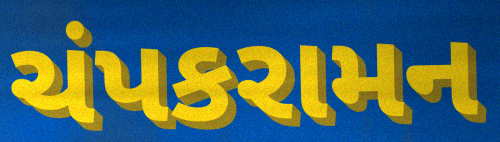
ચંપકરામન